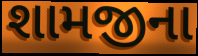
શામજીના